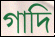
গাদি